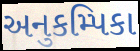
અનુકમ્પિકા